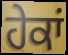
ਹੇਕਾਂ